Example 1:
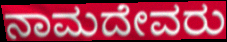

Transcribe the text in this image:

ನಾಮದೇವರು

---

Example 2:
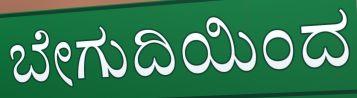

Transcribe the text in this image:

ಬೇಗುದಿಯಿಂದ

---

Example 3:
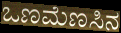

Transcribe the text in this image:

ಒಣಮೆಣಸಿನ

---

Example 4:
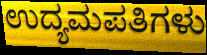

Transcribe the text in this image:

ಉದ್ಯಮಪತಿಗಳು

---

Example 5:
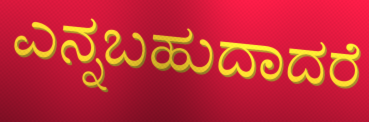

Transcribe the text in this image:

ಎನ್ನಬಹುದಾದರೆ